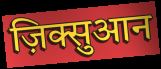
ज़िक्सुआन